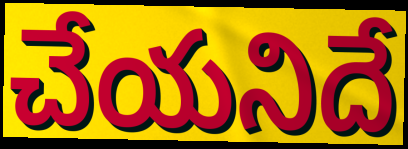
చేయనిదే